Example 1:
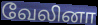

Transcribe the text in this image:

வேலினா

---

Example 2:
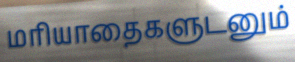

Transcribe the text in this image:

மரியாதைகளுடனும்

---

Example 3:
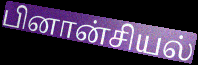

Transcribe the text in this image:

பினான்சியல்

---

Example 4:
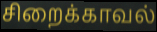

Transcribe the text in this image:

சிறைக்காவல்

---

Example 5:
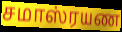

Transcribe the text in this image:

சமாஸ்ரயண